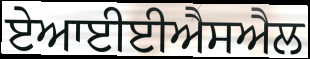
ਏਆਈਈਐਸਐਲ